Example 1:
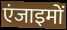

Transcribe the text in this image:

एंजाइमों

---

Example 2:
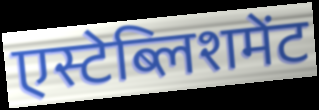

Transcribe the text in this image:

एस्टेब्लिशमेंट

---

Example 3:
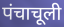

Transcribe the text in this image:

पंचाचूली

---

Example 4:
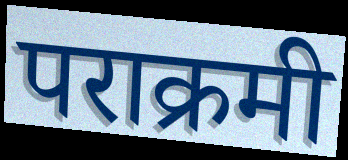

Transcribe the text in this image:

पराक्रमी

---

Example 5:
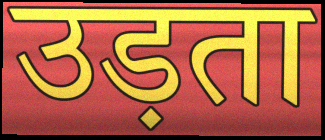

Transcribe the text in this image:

उड़ता